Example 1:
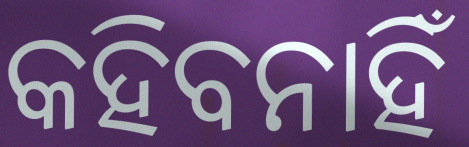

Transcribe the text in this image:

କହିବନାହିଁ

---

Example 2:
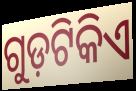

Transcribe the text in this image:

ଗୁଡ଼ଟିକିଏ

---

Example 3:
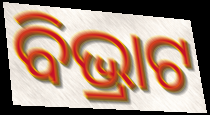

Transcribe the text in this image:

ବିଭ୍ରାଟ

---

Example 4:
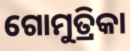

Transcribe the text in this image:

ଗୋମୁତ୍ରିକା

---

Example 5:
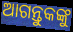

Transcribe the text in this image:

ଆଗନ୍ତୁକଙ୍କୁ